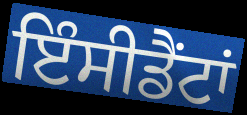
ਇੰਸੀਡੈਂਟਾਂ